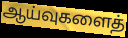
ஆய்வுகளைத்